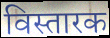
विस्तारक